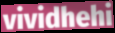
vividhehi